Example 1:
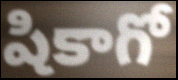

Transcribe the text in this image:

షికాగో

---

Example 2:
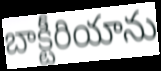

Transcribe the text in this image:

బాక్టీరియాను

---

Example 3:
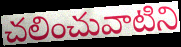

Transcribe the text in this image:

చలించువాటిని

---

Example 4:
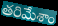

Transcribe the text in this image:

తరిమేశాం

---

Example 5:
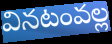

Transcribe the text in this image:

వినటంవల్ల